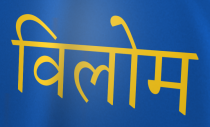
विलोम